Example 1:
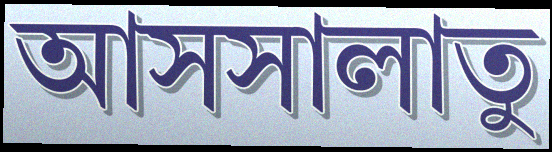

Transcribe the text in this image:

আসসালাতু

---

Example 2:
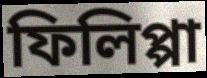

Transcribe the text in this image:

ফিলিপ্পা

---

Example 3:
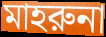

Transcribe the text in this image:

মাহরুনা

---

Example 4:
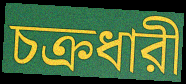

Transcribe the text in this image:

চক্রধারী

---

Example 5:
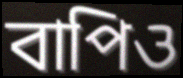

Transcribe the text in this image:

বাপিও